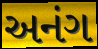
અનંગ